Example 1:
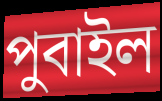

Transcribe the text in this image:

পুবাইল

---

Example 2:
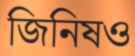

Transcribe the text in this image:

জিনিষও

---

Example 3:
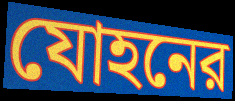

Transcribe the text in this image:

যোহনের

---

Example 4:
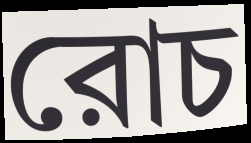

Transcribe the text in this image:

রোচ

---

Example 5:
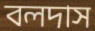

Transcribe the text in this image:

বলদাস